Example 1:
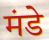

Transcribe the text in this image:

मंडे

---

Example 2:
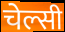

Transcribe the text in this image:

चेल्सी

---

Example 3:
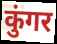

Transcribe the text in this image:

कुंगर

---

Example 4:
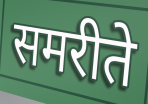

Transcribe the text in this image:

समरीते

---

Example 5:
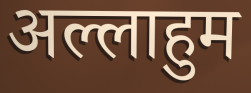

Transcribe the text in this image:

अल्लाहुम